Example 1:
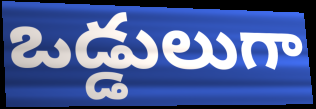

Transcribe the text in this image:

ఒడ్డులుగా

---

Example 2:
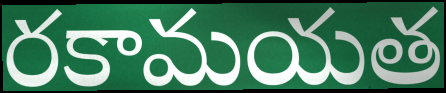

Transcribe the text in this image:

రకామయత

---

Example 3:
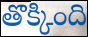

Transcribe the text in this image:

తొక్కింది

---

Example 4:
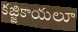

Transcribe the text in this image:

కజ్జికాయలూ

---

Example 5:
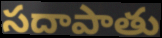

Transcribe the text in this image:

సదాపాతు